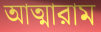
আত্মারাম